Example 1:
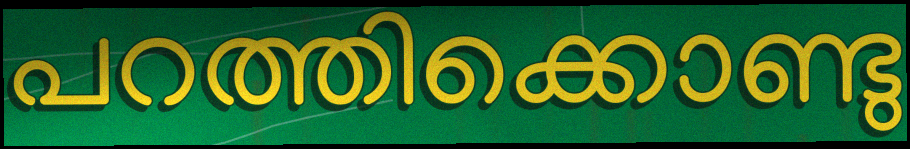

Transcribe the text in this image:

പറത്തിക്കൊണ്ടു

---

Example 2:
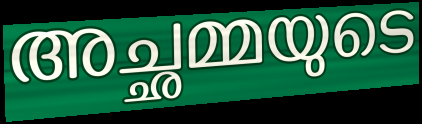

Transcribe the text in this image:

അച്ഛമ്മയുടെ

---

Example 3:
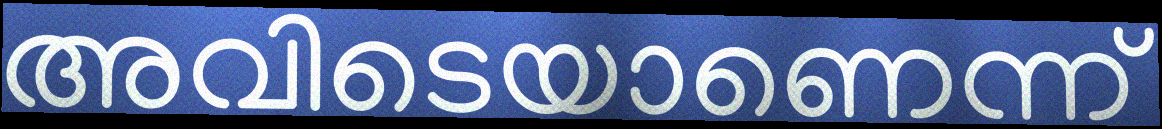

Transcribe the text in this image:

അവിടെയാണെന്ന്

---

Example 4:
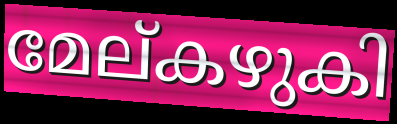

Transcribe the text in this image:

മേല്കഴുകി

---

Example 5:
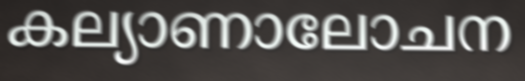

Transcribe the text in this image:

കല്യാണാലോചന